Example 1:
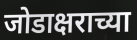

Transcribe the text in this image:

जोडाक्षराच्या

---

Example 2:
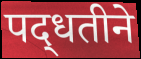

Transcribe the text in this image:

पद्‍धतीने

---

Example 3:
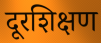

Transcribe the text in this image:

दूरशिक्षण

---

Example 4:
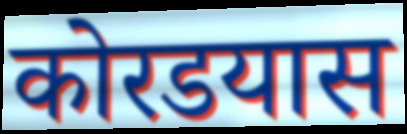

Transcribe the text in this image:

कोरडयास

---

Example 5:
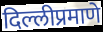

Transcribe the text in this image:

दिल्लीप्रमाणे